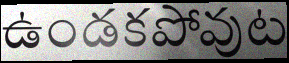
ఉండకపోవుట